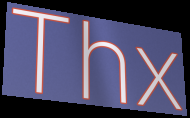
Thx